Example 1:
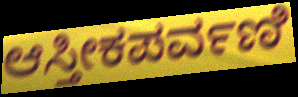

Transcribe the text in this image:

ಆಸ್ತೀಕಪರ್ವಣಿ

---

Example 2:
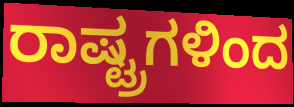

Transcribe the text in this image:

ರಾಷ್ಟ್ರಗಳಿಂದ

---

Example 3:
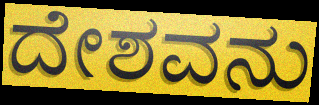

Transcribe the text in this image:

ದೇಶವನು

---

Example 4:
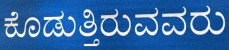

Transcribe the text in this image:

ಕೊಡುತ್ತಿರುವವರು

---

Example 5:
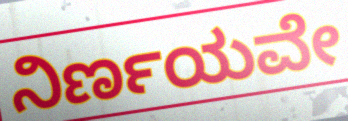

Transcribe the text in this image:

ನಿರ್ಣಯವೇ